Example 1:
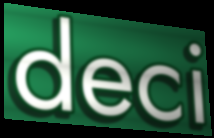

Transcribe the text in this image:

deci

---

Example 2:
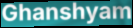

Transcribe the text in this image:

Ghanshyam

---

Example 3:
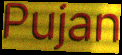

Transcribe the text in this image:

Pujan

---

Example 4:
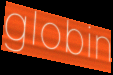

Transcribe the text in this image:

globin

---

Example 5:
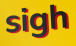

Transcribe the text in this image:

sigh